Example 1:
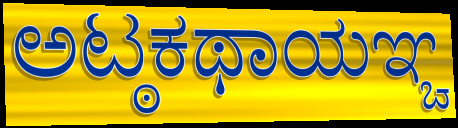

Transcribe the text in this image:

ಅಟ್ಠಕಥಾಯಞ್ಚ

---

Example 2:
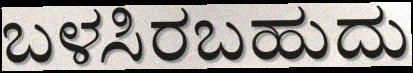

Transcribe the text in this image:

ಬಳಸಿರಬಹುದು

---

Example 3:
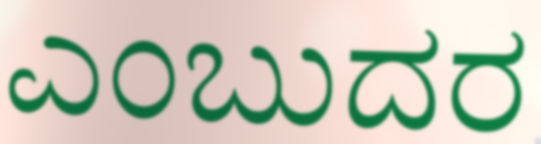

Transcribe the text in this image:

ಎಂಬುದರ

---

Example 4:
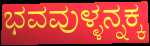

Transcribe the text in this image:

ಭವವುಳ್ಳನ್ನಕ್ಕ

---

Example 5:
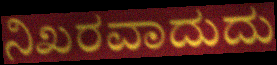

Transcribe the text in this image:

ನಿಖರವಾದುದು